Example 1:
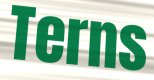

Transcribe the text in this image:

Terns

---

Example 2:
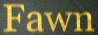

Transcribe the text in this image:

Fawn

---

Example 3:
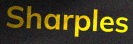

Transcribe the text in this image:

Sharples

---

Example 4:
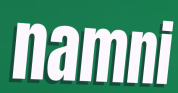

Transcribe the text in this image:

namni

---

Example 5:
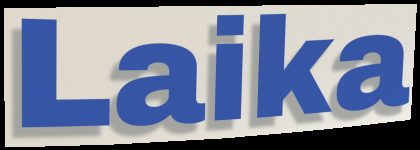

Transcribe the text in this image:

Laika